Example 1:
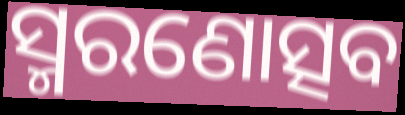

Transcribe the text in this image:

ସ୍ମରଣୋତ୍ସବ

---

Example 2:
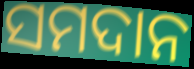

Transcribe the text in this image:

ସମଦାନ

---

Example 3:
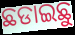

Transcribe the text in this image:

ଛଡାଇଛୁ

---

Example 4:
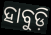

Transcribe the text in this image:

ହାବୁଡ଼ି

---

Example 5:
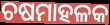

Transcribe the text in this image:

ଚଷମାହଳକ